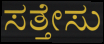
ಸತ್ತೇಸು